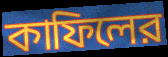
কাফিলের